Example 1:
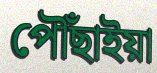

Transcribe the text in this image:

পৌঁছাইয়া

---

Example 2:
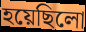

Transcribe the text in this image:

হয়েছিলো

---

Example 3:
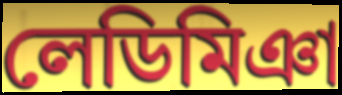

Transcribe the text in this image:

লেডিমিঞা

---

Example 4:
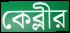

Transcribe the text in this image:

কেব্লীর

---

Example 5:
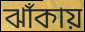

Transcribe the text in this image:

ঝাঁকায়